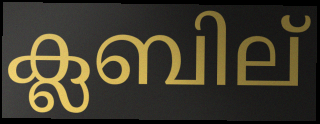
ക്ലബില്